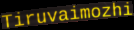
Tiruvaimozhi